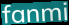
fanmi